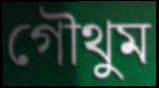
গৌথুম